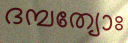
ദമ്പത്യോഃ